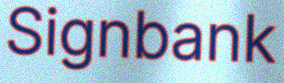
Signbank